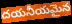
దయనీయమైన